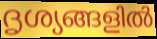
ദൃശ്യങ്ങളിൽ